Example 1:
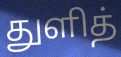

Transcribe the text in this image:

துளித்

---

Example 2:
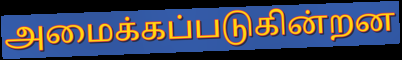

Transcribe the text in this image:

அமைக்கப்படுகின்றன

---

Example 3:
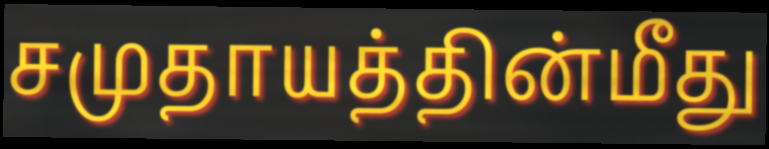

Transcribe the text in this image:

சமுதாயத்தின்மீது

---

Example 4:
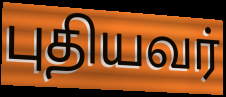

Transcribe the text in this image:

புதியவர்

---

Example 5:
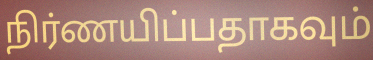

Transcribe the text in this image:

நிர்ணயிப்பதாகவும்